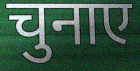
चुनाए